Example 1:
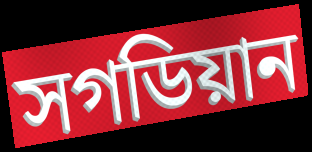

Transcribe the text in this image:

সগডিয়ান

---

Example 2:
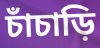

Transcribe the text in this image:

চাঁচাড়ি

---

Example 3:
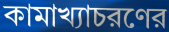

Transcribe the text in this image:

কামাখ্যাচরণের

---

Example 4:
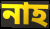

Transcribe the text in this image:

নাহ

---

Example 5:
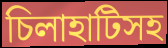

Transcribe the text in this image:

চিলাহাটিসহ